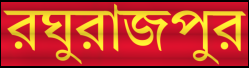
রঘুরাজপুর